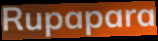
Rupapara